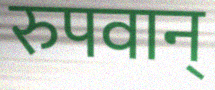
रुपवान्